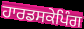
ਹਾਰਡਸਕੇਪਿੰਗ